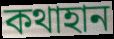
কথাহান